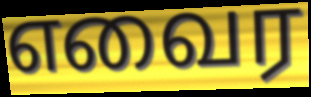
எவைர